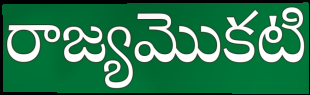
రాజ్యమొకటి